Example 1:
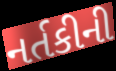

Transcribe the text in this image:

નર્તકીની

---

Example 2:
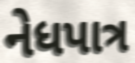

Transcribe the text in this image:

નેધપાત્ર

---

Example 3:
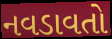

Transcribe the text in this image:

નવડાવતો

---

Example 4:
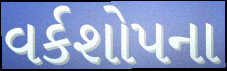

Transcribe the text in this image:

વર્કશોપના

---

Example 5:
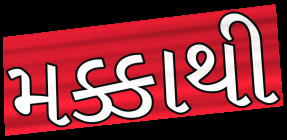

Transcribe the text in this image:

મક્કાથી